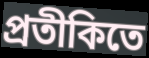
প্রতীকিতে